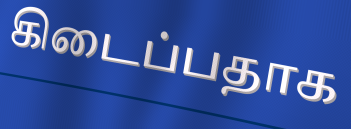
கிடைப்பதாக